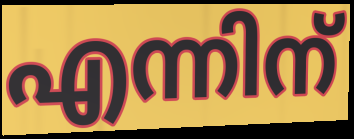
എന്നിന്